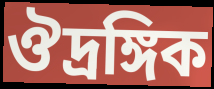
ঔদ্রঙ্গিক